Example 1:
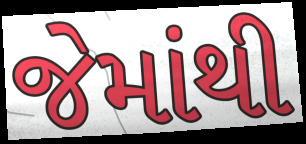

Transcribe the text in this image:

જેમાંથી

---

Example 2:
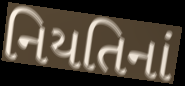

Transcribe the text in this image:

નિયતિનાં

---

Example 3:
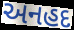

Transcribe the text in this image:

અનહદ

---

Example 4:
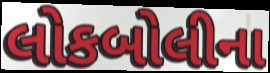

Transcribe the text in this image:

લોકબોલીના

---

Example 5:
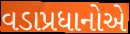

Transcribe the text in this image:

વડાપ્રધાનોએ